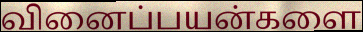
வினைப்பயன்களை